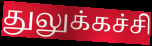
துலுக்கச்சி